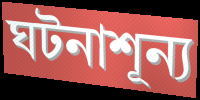
ঘটনাশূন্য